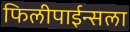
फिलीपाईन्सला